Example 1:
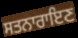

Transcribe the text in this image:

ਸਤਨਾਰਾਇਣ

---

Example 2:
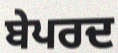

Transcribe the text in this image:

ਬੇਪਰਦ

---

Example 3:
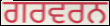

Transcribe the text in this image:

ਗਰਵਰਨ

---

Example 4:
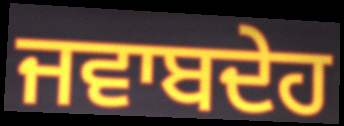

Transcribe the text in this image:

ਜਵਾਬਦੇਹ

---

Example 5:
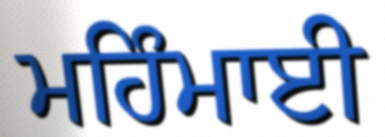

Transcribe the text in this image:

ਮਹਿੰਮਾਈ